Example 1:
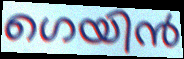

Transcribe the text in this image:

ഗെയിൻ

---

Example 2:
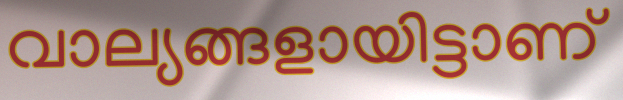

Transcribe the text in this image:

വാല്യങ്ങളായിട്ടാണ്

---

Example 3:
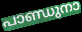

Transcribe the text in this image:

പാണ്ഡുനാ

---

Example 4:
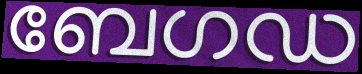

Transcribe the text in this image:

ബേഗഡ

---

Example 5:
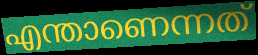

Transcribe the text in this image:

എന്താണെന്നത്